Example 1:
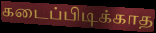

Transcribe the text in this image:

கடைப்பிடிக்காத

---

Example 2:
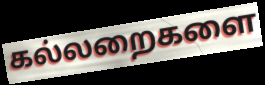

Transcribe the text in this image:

கல்லறைகளை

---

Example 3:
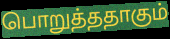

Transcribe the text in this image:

பொறுத்ததாகும்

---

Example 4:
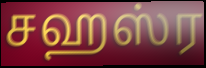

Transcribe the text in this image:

சஹஸ்ர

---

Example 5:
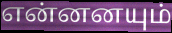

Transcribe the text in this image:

என்னனயும்